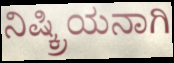
ನಿಷ್ಕ್ರಿಯನಾಗಿ